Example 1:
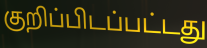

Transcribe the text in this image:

குறிப்பிடப்பட்டது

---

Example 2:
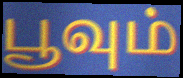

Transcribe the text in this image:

பூவும்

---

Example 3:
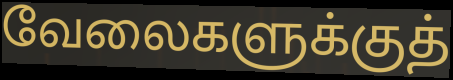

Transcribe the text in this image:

வேலைகளுக்குத்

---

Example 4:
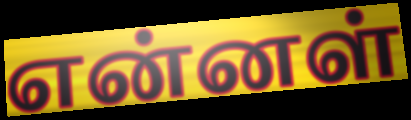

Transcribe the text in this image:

என்னள்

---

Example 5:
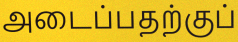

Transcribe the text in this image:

அடைப்பதற்குப்